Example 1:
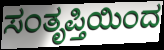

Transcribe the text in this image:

ಸಂತೃಪ್ತಿಯಿಂದ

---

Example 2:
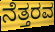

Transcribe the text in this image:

ನೆತ್ತರವ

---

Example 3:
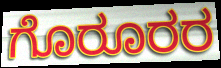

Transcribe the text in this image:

ಗೊರೂರರ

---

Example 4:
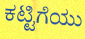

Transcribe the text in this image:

ಕಟ್ಟಿಗೆಯು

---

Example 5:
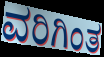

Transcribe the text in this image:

ವರಿಗಿಂತ